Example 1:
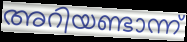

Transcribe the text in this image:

അറിയണ്ടാന്ന്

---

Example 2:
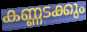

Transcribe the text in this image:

കണ്ണടക്കും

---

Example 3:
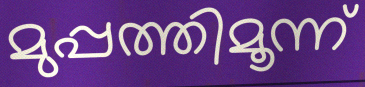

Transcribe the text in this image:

മുപ്പത്തിമൂന്ന്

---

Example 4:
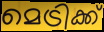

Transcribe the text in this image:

മെട്രിക്ക്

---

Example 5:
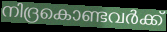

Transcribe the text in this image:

നിദ്രകൊണ്ടവർക്ക്